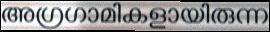
അഗ്രഗാമികളായിരുന്ന